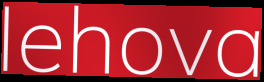
Iehova